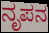
ನೃಪನ